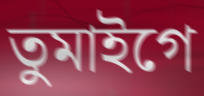
তুমাইগে